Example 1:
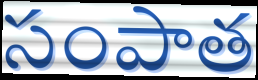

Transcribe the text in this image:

సంపాత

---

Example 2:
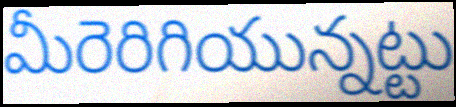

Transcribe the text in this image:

మీరెరిగియున్నట్టు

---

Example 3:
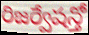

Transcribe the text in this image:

రిజర్వేషన్తో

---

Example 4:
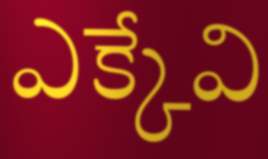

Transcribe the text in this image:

ఎక్కేవి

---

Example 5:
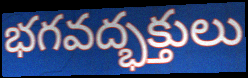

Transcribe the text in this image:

భగవద్భక్తులు